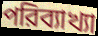
পরিব্যাখ্যা